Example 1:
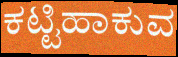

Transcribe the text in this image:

ಕಟ್ಟಿಹಾಕುವ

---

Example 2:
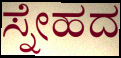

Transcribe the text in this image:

ಸ್ನೇಹದ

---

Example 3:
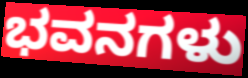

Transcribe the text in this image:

ಭವನಗಳು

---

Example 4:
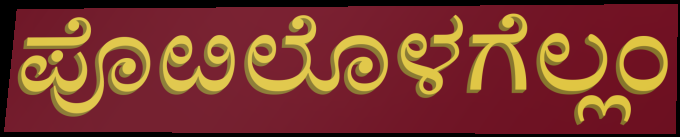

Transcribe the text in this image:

ಪೊೞಲೊಳಗೆಲ್ಲಂ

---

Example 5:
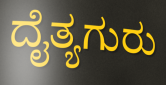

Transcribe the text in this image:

ದೈತ್ಯಗುರು